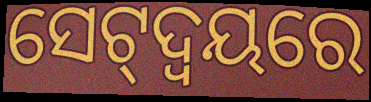
ସେଟ୍‌ଦ୍ଵୟରେ